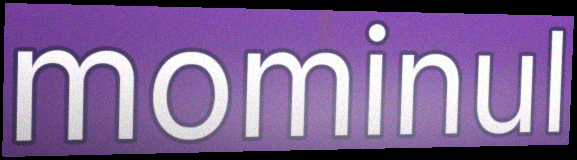
mominul